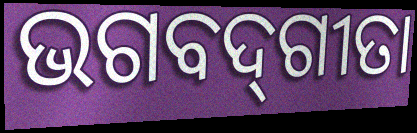
ଭଗବଦ୍‌ଗୀତା